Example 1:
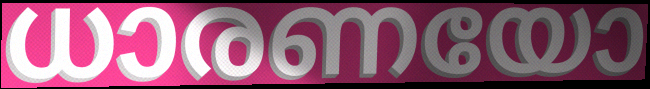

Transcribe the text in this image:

ധാരണയോ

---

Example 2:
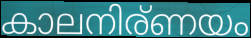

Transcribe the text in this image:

കാലനിര്ണയം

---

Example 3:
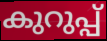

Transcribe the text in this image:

കുറുപ്പ്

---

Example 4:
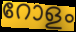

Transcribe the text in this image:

റോളം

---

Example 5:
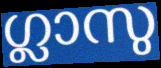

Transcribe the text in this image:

ഗ്ലാസു